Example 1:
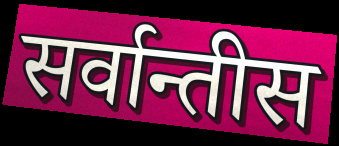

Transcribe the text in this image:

सर्वान्तीस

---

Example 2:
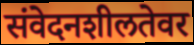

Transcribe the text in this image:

संवेदनशीलतेवर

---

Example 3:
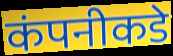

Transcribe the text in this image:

कंपनीकडे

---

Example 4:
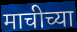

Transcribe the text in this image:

माचीच्या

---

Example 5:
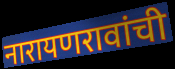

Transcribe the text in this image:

नारायणरावांची